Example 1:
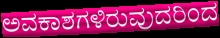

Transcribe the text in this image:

ಅವಕಾಶಗಳಿರುವುದರಿಂದ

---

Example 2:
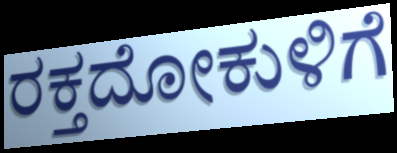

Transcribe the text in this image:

ರಕ್ತದೋಕುಳಿಗೆ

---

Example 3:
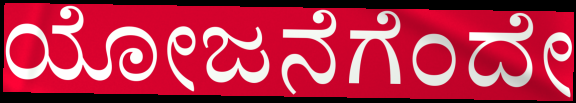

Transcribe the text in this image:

ಯೋಜನೆಗೆಂದೇ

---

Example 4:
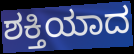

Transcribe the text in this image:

ಶಕ್ತಿಯಾದ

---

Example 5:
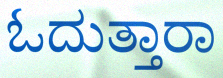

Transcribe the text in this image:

ಓದುತ್ತಾರಾ